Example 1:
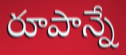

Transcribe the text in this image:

రూపాన్నే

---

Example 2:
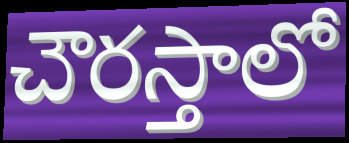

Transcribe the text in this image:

చౌరస్తాలో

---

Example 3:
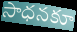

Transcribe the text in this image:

సాధనకూ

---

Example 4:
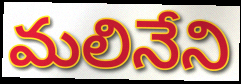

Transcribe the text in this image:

మలినేని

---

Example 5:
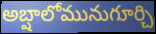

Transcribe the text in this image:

అబ్షాలోమునుగూర్చి